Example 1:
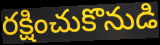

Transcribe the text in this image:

రక్షించుకొనుడి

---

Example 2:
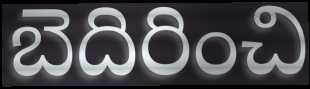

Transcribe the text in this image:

బెదిరించి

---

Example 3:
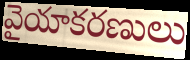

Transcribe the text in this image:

వైయాకరణులు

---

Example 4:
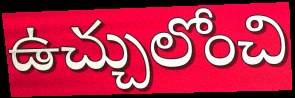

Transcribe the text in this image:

ఉచ్చులోంచి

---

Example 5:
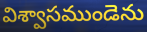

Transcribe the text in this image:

విశ్వాసముండెను